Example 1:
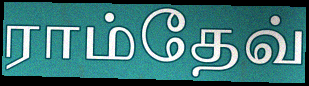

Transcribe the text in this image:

ராம்தேவ்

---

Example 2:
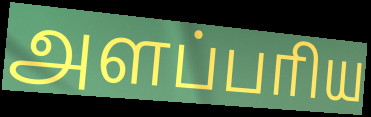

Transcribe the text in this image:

அளப்பரிய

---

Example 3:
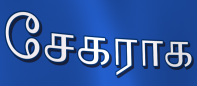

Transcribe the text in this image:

சேகராக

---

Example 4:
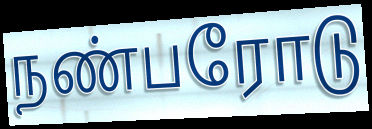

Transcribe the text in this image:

நண்பரோடு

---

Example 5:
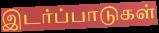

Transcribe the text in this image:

இடர்ப்பாடுகள்